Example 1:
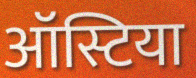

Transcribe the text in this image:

ऑस्टिया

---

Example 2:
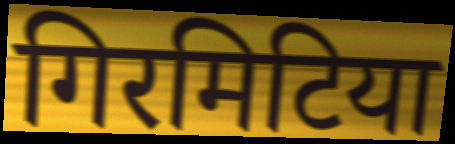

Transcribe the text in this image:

गिरमिटिया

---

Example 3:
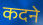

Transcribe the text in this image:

कदने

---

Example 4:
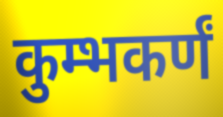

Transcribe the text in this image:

कुम्भकर्णं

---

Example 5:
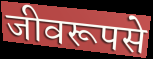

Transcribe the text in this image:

जीवरूपसे